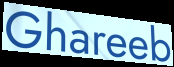
Ghareeb